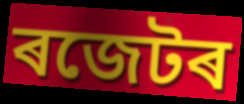
ৰজেটৰ